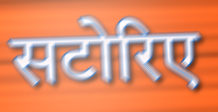
सटोरिए